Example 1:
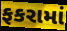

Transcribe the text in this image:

ફકરામાં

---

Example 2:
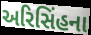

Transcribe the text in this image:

અરિસિંહના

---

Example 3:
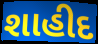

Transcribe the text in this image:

શાહીદ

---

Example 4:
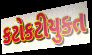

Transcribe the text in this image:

કટોકટીયુક્ત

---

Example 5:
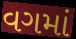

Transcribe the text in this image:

વગમાં